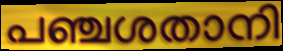
പഞ്ചശതാനി